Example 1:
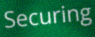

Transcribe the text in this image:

Securing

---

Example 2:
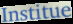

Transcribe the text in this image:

Institue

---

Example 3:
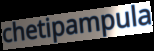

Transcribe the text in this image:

chetipampula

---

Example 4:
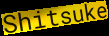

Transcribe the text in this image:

Shitsuke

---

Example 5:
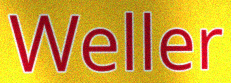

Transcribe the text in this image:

Weller